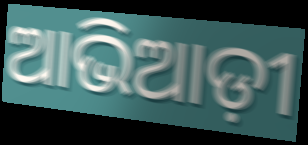
ଆଭିଆଡ଼ୀ